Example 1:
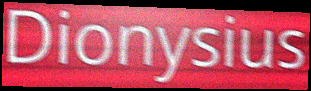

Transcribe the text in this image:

Dionysius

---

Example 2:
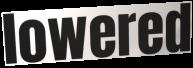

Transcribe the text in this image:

lowered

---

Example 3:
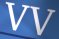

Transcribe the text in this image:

VV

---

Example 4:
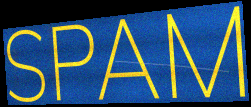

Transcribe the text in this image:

SPAM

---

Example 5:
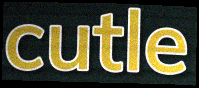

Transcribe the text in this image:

cutle